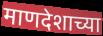
माणदेशाच्या